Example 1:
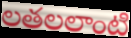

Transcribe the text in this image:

లతలలాంటి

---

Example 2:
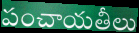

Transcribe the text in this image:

పంచాయతీలు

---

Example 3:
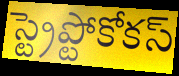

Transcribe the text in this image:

స్ట్రెప్టోకోకస్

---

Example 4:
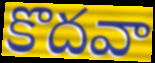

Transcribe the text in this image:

కొదవా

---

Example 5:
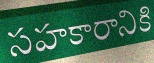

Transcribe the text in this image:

సహకారానికి